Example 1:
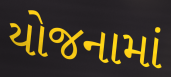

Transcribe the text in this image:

યોજનામાં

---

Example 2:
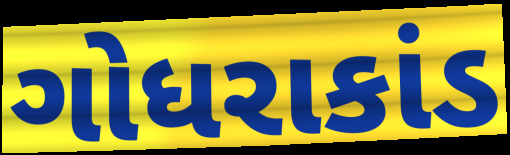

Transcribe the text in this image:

ગોધરાકાંડ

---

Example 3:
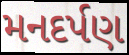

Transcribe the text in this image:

મનદર્પણ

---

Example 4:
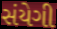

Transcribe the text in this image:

સંયેગી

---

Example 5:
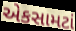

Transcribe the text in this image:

એકસામટાં